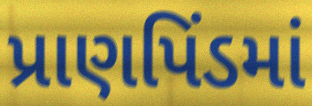
પ્રાણપિંડમાં